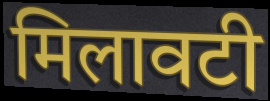
मिलावटी